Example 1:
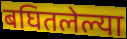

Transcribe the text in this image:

बघितलेल्या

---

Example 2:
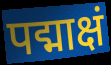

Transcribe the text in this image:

पद्माक्षं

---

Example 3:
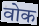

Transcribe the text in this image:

वोक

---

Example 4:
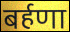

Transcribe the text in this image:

बर्हणा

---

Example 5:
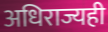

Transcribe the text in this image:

अधिराज्यही